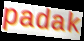
padak